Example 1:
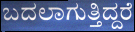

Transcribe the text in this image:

ಬದಲಾಗುತ್ತಿದ್ದರೆ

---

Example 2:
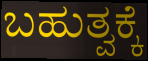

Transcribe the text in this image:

ಬಹುತ್ವಕ್ಕೆ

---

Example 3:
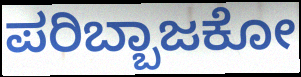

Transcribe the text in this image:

ಪರಿಬ್ಬಾಜಕೋ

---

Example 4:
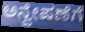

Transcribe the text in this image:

ಅನ್ವೇಷಣೆಗೆ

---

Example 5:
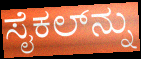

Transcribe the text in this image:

ಸೈಕಲ್‌ನ್ನು